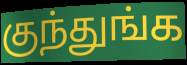
குந்துங்க